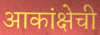
आकांक्षेची